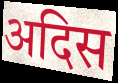
अदिस